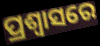
ପ୍ରଶ୍ବାସରେ